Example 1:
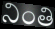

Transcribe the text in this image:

నింతి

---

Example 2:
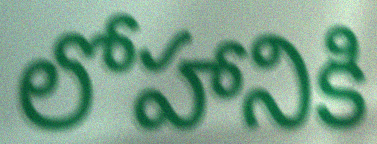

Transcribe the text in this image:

లోహానికి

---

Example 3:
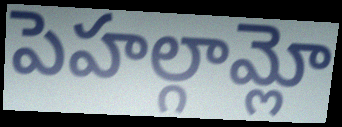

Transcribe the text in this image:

పెహల్గామ్లో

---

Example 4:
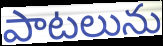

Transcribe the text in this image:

పాటలును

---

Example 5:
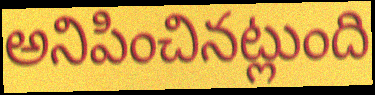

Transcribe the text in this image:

అనిపించినట్లుంది